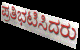
ಪ್ರತಿಭಟಿಸಿದರು